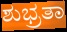
ಶುಭ್ರತಾ